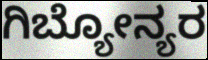
ಗಿಬ್ಯೋನ್ಯರ